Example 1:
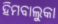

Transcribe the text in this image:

ହିମବାଲୁକା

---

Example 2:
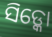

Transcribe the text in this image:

ସିଡ୍କୋ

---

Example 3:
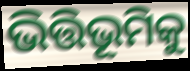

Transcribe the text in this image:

ଭିତ୍ତିଭୂମିକୁ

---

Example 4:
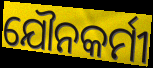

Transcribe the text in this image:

ଯୌନକର୍ମୀ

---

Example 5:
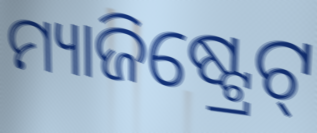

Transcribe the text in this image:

ମ୍ୟାଜିଷ୍ଟ୍ରେଟ୍